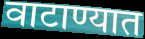
वाटाण्यात